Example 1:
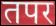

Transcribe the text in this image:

तपर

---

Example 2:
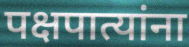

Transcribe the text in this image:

पक्षपात्यांना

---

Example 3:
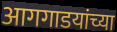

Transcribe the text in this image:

आगगाडयांच्या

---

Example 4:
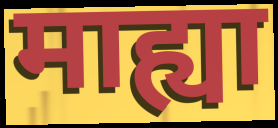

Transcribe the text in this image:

माह्या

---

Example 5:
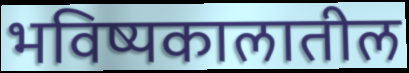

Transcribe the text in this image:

भविष्यकालातील